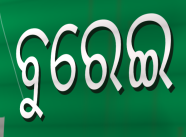
ବୁରେଇ